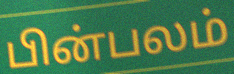
பின்பலம்